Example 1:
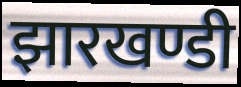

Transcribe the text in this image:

झारखण्डी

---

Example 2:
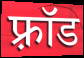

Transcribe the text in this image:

फ़्रॉड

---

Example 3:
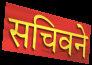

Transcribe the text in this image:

सचिवने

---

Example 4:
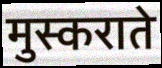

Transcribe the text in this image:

मुस्कराते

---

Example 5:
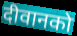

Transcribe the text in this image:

दीवानको